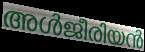
അൾജീരിയൻ